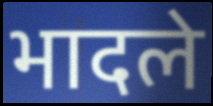
भादले